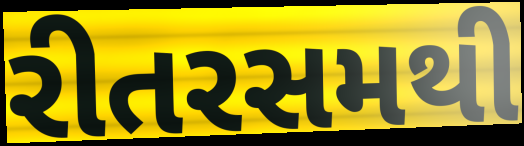
રીતરસમથી